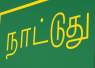
நாட்டுது